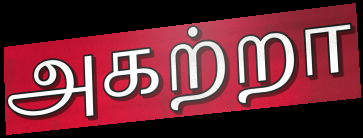
அகற்றா